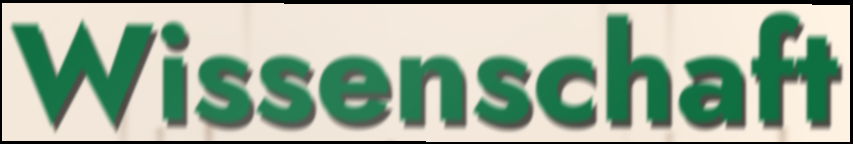
Wissenschaft